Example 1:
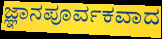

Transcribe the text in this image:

ಜ್ಞಾನಪೂರ್ವಕವಾದ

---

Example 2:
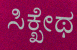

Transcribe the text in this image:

ಸಿಕ್ಖೇಥ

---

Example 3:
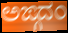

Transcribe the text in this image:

ಅಙ್ಗದಂ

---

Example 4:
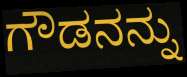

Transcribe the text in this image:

ಗೌಡನನ್ನು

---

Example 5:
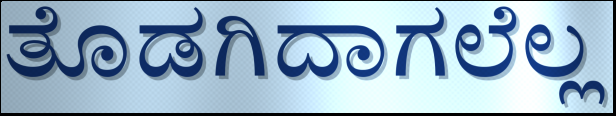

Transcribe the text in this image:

ತೊಡಗಿದಾಗಲೆಲ್ಲ